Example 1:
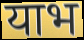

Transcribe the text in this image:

याभ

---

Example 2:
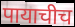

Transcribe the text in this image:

पायाचीच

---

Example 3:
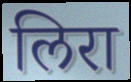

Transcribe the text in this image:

लिरा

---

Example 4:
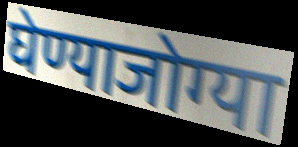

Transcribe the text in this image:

घेण्याजोग्या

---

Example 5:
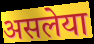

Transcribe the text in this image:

असलेया